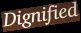
Dignified